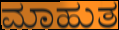
ಮಾಹುತ